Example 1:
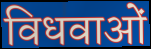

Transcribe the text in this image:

विधवाओं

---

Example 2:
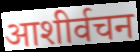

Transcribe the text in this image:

आशीर्वचन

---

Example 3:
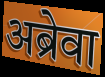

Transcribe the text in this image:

अब्रेवा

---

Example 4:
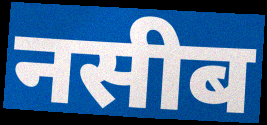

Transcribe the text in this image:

नसीब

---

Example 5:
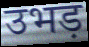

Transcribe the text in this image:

उभड़